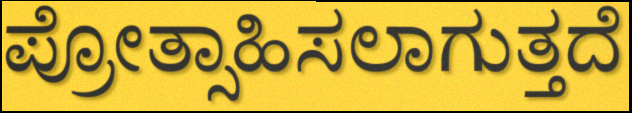
ಪ್ರೋತ್ಸಾಹಿಸಲಾಗುತ್ತದೆ